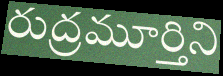
రుద్రమూర్తిని